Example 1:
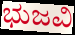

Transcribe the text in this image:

ಭುಜವಿ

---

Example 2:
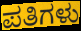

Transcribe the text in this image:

ಪತಿಗಳು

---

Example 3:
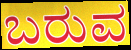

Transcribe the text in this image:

ಬರುವ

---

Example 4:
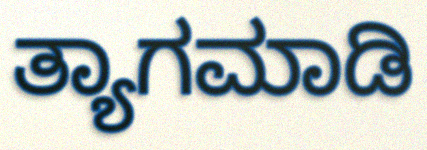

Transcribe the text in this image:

ತ್ಯಾಗಮಾಡಿ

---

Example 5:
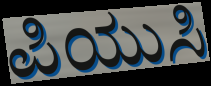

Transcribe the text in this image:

ಪಿಯುಸಿ